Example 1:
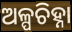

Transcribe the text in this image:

ଅଳ୍ପଚିହ୍ନା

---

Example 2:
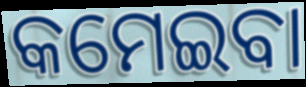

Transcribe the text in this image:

କମେଇବା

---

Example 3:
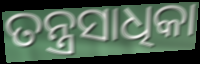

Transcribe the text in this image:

ତନ୍ତ୍ରସାଧିକା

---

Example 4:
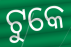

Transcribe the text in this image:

ଟୁକେ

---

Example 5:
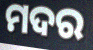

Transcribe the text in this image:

ମଦର